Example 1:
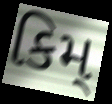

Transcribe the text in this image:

કિમ્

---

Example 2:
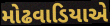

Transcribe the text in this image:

મોઢવાડિયાએ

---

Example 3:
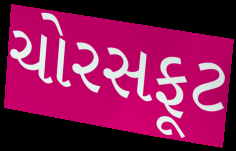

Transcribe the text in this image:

ચોરસફૂટ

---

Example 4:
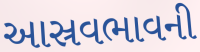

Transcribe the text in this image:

આસ્રવભાવની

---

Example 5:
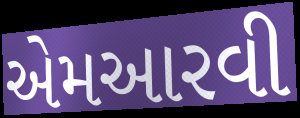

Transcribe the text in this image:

એમઆરવી